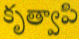
కృత్వాపి